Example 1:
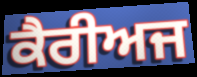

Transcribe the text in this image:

ਕੈਰੀਅਜ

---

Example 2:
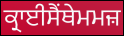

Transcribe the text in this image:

ਕ੍ਰਾਈਸੈਂਥੇਮਮਜ਼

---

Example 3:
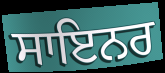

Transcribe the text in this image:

ਸਾਇਨਰ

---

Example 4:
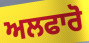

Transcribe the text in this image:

ਅਲਫਾਰੋ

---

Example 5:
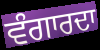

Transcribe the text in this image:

ਵੰਗਾਰਦਾ